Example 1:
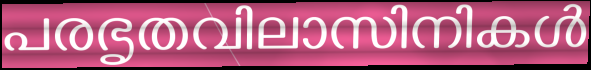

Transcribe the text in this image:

പരഭൃതവിലാസിനികൾ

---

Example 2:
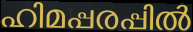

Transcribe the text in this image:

ഹിമപ്പരപ്പിൽ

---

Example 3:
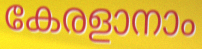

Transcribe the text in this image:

കേരളാനാം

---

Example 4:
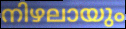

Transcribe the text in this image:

നിഴലായും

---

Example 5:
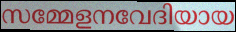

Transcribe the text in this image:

സമ്മേളനവേദിയായ